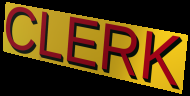
CLERK